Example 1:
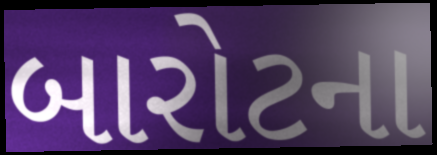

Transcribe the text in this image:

બારોટના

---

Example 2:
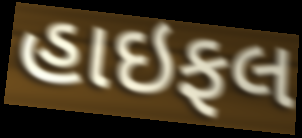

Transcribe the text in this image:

હાઇફલ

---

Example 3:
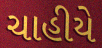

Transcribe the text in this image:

ચાહીયે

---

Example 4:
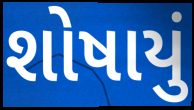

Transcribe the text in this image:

શોષાયું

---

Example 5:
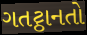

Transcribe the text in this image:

ગતટ્ઠાનતો